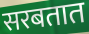
सरबतात